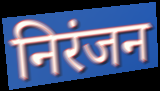
निरंजन